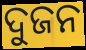
ଦୁଜନ